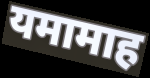
यमामाह